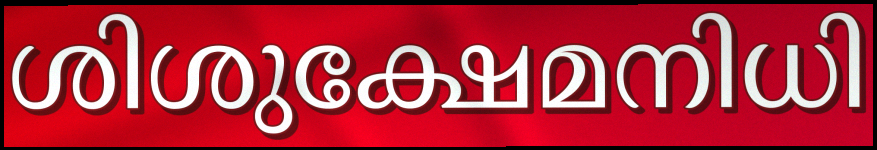
ശിശുക്ഷേമനിധി